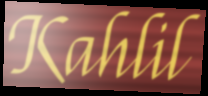
Kahlil